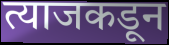
त्याजकडून